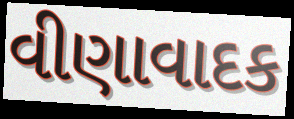
વીણાવાદક